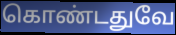
கொண்டதுவே